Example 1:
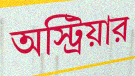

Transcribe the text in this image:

অস্ট্রিয়ার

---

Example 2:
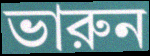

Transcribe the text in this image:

ভারুন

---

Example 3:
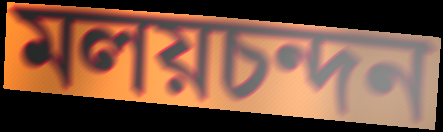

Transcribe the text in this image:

মলয়চন্দন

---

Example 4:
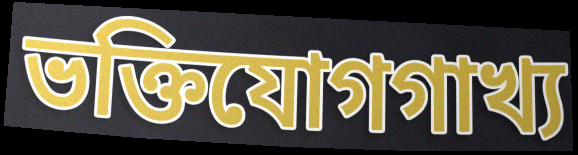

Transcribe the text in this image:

ভক্তিযোগগাখ্য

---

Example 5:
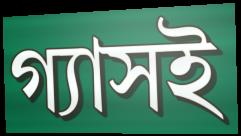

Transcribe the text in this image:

গ্যাসই